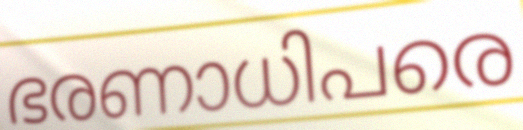
ഭരണാധിപരെ